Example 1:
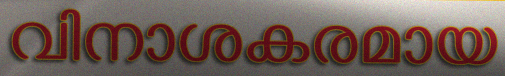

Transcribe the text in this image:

വിനാശകരമായ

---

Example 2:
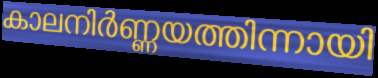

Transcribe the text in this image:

കാലനിർണ്ണയത്തിന്നായി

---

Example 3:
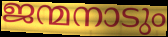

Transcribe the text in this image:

ജന്മനാടും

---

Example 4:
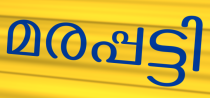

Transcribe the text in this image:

മരപ്പട്ടി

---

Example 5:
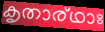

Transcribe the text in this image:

കൃതാര്ഥാഃ